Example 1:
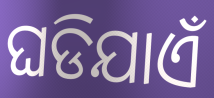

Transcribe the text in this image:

ଘଡିଯାଏଁ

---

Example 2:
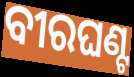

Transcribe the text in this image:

ବୀରଘଣ୍ଟ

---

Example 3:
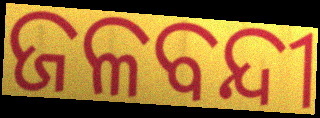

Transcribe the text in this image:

ଜଳବନ୍ଦୀ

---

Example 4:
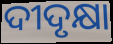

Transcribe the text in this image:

ଦୀଦୃକ୍ଷା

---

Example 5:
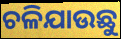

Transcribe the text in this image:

ଚଳିଯାଉଛୁ